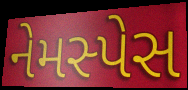
નેમસ્પેસ